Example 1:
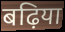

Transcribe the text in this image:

बढ़िया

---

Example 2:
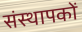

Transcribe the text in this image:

संस्थापकों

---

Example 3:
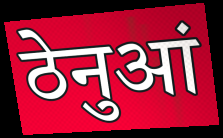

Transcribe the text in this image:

ठेनुआं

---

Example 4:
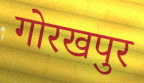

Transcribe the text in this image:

गोरखपुर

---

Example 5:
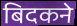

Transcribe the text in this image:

बिदकने